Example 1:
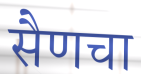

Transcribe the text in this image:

सैणचा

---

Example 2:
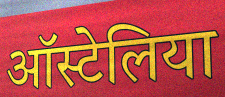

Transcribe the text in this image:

ऑस्टेलिया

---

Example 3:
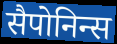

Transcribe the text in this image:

सैपोनिन्स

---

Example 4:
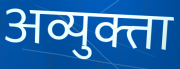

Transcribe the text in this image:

अव्युक्ता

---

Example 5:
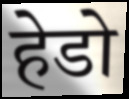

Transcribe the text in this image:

हेडो